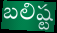
బలిష్ట